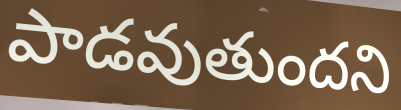
పాడవుతుందని